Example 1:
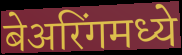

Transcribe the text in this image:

बेअरिंगमध्ये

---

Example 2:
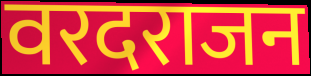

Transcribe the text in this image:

वरदराजन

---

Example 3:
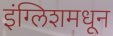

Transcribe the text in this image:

इंग्लिशमधून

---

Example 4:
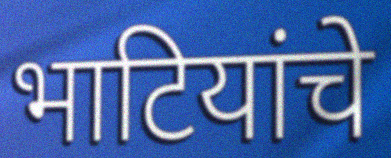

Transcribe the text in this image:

भाटियांचे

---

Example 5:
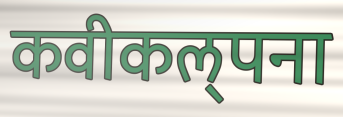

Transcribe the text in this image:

कवीकल्पना